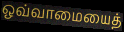
ஒவ்வாமையைத்